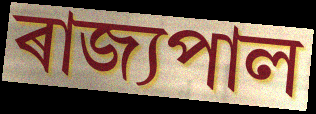
ৰাজ্যপাল